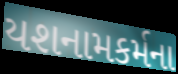
યશનામકર્મના